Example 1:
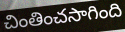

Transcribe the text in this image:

చింతించసాగింది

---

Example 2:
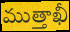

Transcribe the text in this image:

ముత్తాఖీ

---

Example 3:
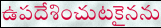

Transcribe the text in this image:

ఉపదేశించుటకైనను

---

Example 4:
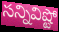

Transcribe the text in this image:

సన్నివిష్టో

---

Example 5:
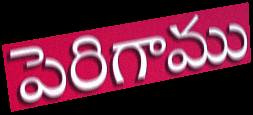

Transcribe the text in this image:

పెరిగాము